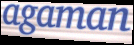
agaman